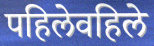
पहिलेवहिले